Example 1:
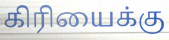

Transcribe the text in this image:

கிரியைக்கு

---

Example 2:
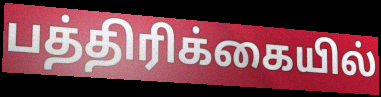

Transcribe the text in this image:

பத்திரிக்கையில்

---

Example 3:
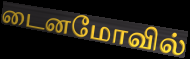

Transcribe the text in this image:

டைனமோவில்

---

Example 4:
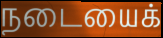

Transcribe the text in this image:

நடையைக்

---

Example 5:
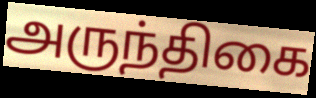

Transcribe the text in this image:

அருந்திகை